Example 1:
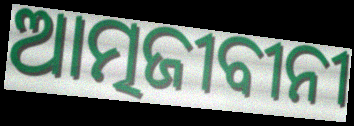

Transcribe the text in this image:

ଆତ୍ମଜୀବୀନୀ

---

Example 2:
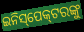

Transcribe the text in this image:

ଇନିସ୍‌ପେକ୍‍ଟରଙ୍କୁ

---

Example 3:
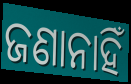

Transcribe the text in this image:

ଜଣାନାହିଁ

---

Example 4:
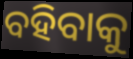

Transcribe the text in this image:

ବହିବାକୁ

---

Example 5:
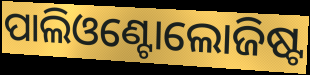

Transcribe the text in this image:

ପାଲିଓଣ୍ଟୋଲୋଜିଷ୍ଟ